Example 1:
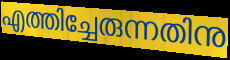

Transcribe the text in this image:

എത്തിച്ചേരുന്നതിനു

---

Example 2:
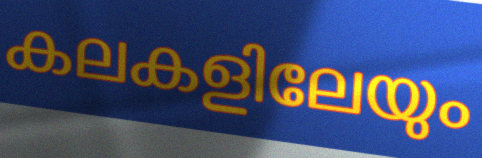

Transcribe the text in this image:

കലകളിലേയും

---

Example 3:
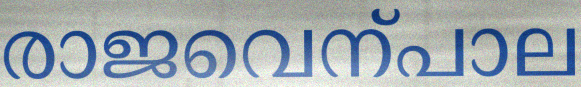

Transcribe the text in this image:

രാജവെന്പാല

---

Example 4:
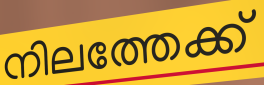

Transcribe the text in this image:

നിലത്തേക്ക്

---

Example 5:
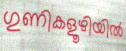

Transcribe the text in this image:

ഗുണികളൂഴിയിൽ